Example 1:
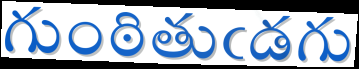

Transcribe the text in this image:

గుంఠితుఁడగు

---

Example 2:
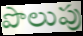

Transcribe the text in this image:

పొలుపు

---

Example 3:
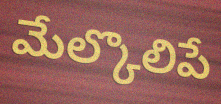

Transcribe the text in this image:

మేల్కొలిపే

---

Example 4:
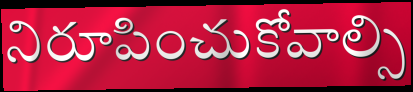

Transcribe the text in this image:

నిరూపించుకోవాల్సి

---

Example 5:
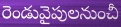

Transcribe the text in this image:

రెండువైపులనుంచీ